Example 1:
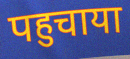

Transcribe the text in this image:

पहुचाया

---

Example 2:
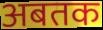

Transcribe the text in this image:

अबतक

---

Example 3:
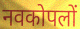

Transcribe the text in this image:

नवकोपलों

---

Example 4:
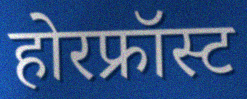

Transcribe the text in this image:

होरफ्रॉस्ट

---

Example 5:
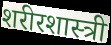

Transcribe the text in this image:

शरीरशास्त्री